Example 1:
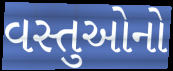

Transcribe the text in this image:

વસ્તુઓનો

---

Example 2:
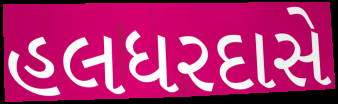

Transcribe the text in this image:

હલધરદાસે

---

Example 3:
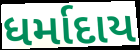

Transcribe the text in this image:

ધર્માદાય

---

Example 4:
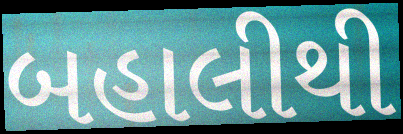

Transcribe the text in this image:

બહાલીથી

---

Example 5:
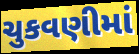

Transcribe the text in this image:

ચુકવણીમાં